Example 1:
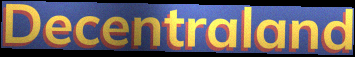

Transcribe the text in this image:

Decentraland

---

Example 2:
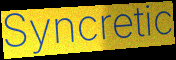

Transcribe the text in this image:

Syncretic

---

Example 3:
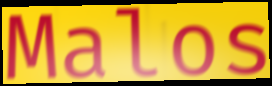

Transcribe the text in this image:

Malos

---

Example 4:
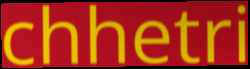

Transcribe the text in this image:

chhetri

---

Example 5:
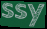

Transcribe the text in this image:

ssy